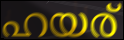
ഹയര്